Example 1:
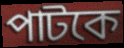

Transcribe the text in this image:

পাটকে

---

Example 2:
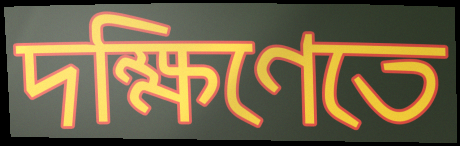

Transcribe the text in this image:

দক্ষিণেতে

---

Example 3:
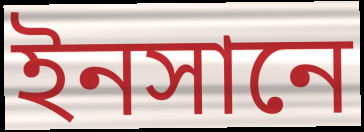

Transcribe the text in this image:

ইনসানে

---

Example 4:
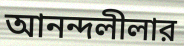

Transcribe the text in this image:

আনন্দলীলার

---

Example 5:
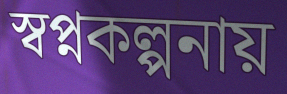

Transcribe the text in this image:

স্বপ্নকল্পনায়